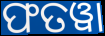
ଫତୱା